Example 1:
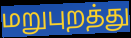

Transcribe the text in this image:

மறுபுறத்து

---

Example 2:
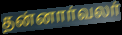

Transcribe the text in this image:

தன்னார்வலர்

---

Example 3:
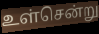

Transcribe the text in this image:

உள்சென்று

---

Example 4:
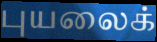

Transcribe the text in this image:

புயலைக்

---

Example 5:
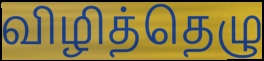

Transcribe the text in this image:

விழித்தெழு